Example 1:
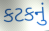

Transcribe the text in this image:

કટકનું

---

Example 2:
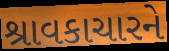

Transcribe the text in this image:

શ્રાવકાચારને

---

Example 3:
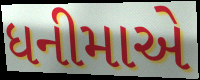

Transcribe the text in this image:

ધનીમાએ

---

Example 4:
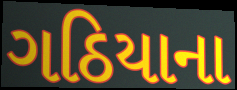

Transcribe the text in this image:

ગઠિયાના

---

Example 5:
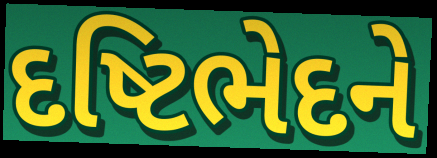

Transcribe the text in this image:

દષ્ટિભેદને